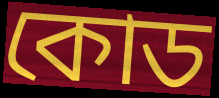
কোড